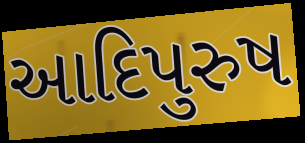
આદિપુરુષ